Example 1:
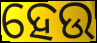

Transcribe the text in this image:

ହେଉ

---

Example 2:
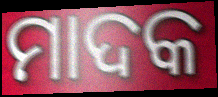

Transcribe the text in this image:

ମାଦକ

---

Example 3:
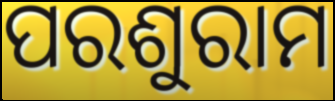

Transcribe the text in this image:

ପରଶୁରାମ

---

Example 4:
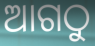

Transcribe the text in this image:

ଆଗଠୁ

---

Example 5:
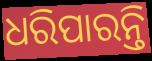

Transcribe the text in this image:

ଧରିପାରନ୍ତି